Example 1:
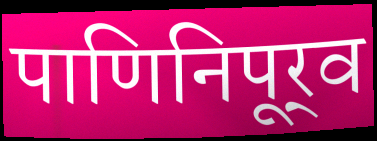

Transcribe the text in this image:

पाणिनिपूर्व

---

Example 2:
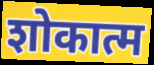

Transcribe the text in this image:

शोकात्म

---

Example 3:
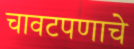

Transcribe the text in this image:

चावटपणाचे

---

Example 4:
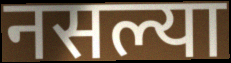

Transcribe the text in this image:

नसल्या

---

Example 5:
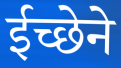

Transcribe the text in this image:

ईच्छेने